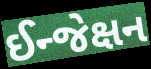
ઈન્જેક્ષન